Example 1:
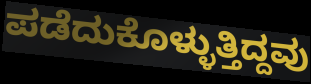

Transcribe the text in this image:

ಪಡೆದುಕೊಳ್ಳುತ್ತಿದ್ದವು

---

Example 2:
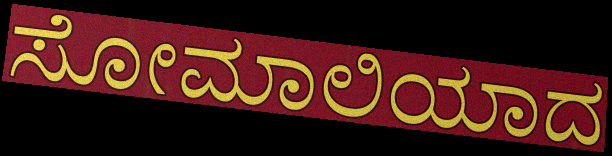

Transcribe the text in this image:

ಸೋಮಾಲಿಯಾದ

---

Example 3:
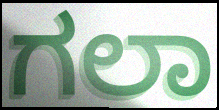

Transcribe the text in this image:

ಗಲಾ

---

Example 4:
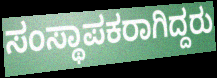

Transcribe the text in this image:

ಸಂಸ್ಥಾಪಕರಾಗಿದ್ದರು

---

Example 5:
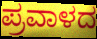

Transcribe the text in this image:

ಪ್ರವಾಳದ